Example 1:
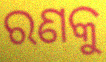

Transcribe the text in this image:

ରଣକୁ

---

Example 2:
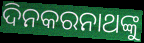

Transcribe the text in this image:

ଦିନକରନାଥଙ୍କୁ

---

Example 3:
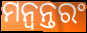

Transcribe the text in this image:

ମନ୍ବନ୍ତରଂ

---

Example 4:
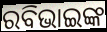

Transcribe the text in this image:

ରବିଭାଇଙ୍କ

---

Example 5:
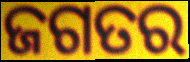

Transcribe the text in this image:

ଜଗତର